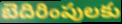
బెదిరింపులకు